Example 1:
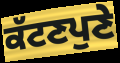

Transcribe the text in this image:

ਕੱਟਣਪੁਣੇ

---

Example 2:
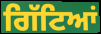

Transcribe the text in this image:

ਗਿੱਟਿਆਂ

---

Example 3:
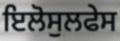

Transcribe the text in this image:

ਇਲੋਸੁਲਫੇਸ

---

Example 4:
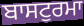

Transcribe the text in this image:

ਬਾਸਟੁਰਮਾ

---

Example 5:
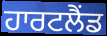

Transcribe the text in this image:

ਹਾਰਟਲੈਂਡ